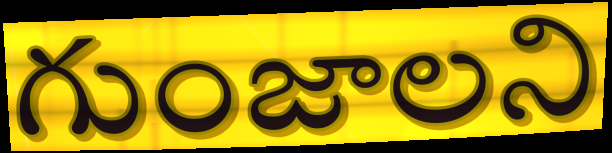
గుంజాలని